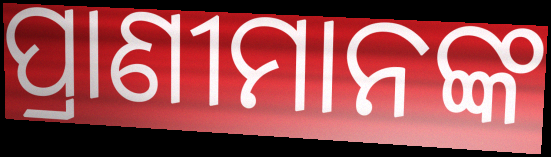
ପ୍ରାଣୀମାନଙ୍କ